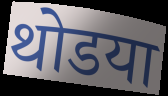
थोडया